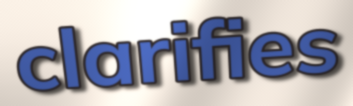
clarifies